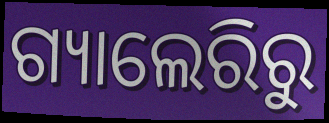
ଗ୍ୟାଲେରିରୁ